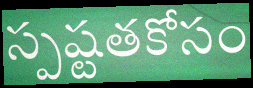
స్పష్టతకోసం